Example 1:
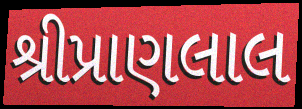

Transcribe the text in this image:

શ્રીપ્રાણલાલ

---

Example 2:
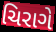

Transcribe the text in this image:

ચિરાગે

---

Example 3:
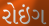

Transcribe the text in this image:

રોઇંગ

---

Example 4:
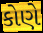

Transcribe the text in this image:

કોણે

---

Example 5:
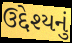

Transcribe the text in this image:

ઉદ્દેશ્યનું